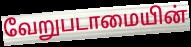
வேறுபடாமையின்